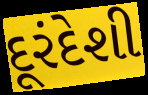
દૂરંદેશી